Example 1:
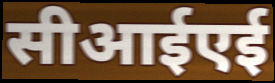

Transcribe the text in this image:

सीआईएई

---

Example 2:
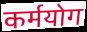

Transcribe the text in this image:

कर्मयोग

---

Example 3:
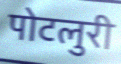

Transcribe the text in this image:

पोटलुरी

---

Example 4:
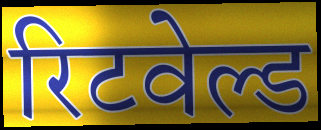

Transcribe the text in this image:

रिटवेल्ड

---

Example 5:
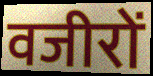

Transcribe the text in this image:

वजीरों